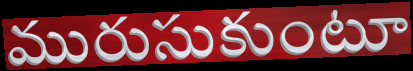
మురుసుకుంటూ